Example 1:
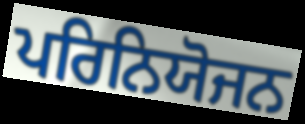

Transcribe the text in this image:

ਪਰਿਨਿਯੋਜਨ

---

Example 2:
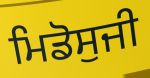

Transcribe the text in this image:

ਮਿਡੋਸੁਜੀ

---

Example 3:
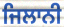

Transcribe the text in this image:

ਜਿਲਾਨੀ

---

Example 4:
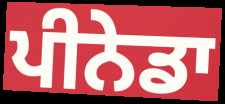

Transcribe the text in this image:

ਪੀਨੇਡਾ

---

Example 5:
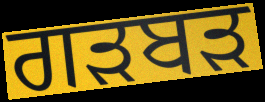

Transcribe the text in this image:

ਗੜਬੜ